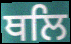
ਥਲਿ